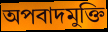
অপবাদমুক্তি